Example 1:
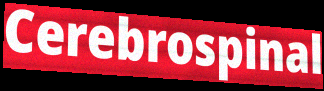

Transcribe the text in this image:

Cerebrospinal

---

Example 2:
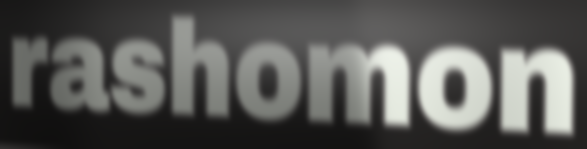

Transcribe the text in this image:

rashomon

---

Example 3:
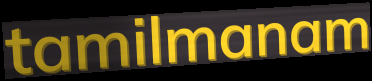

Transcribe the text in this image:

tamilmanam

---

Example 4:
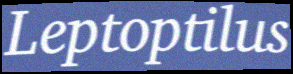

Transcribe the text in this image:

Leptoptilus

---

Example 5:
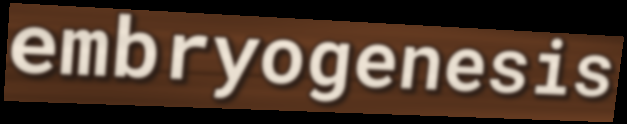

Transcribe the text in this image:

embryogenesis